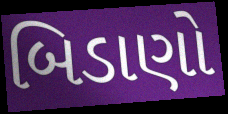
બિડાણો